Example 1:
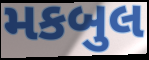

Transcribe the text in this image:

મકબુલ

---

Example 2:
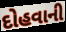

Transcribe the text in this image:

દોહવાની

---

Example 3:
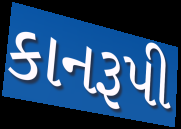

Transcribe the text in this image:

કાનરૂપી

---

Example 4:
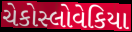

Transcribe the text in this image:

ચેકોસ્લોવેકિયા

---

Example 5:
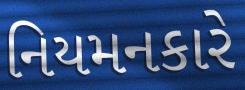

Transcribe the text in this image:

નિયમનકારે